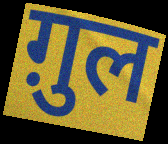
ग़ुल